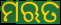
ମଋତ